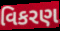
વિકરણ